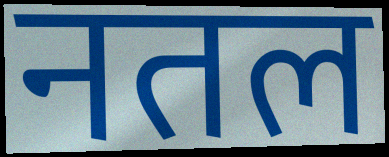
नतल